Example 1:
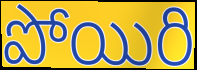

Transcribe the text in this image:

పోయిరి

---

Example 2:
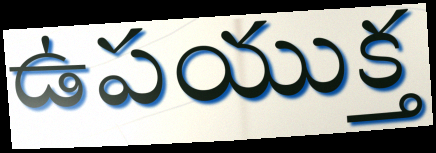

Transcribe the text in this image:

ఉపయుక్త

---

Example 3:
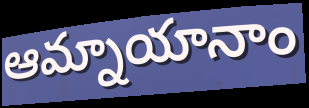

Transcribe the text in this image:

ఆమ్నాయానాం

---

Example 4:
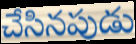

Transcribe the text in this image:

చేసినపుడు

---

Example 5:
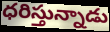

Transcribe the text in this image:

ధరిస్తున్నాడు